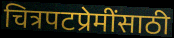
चित्रपटप्रेमींसाठी